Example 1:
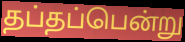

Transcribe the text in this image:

தப்தப்பென்று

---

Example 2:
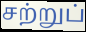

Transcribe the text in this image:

சற்றுப்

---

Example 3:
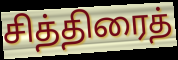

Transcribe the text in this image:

சித்திரைத்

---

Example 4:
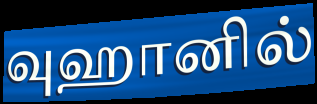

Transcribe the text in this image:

வுஹானில்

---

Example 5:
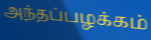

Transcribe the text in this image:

அந்தப்பழக்கம்